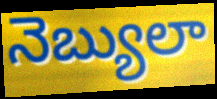
నెబ్యులా